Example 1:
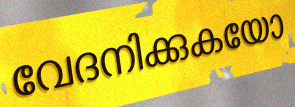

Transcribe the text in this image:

വേദനിക്കുകയോ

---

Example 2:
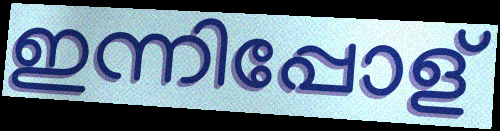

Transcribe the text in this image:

ഇന്നിപ്പോള്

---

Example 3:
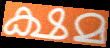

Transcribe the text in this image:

ക്ഷമ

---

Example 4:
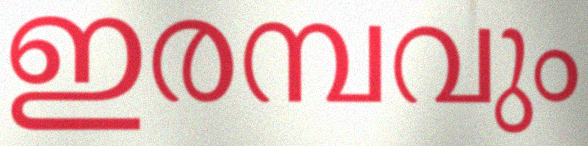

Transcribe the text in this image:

ഇരമ്പവും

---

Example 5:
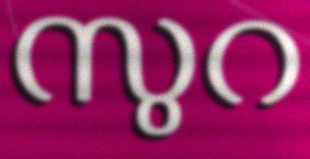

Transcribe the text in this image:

സുറ